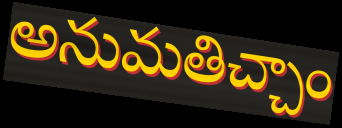
అనుమతిచ్చాం